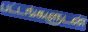
பட்டங்களுடன்